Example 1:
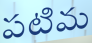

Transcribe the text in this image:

పటిమ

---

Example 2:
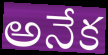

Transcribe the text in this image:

అనేక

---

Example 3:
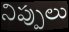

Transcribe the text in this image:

నిప్పులు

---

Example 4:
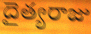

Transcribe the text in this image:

దైత్యరాజు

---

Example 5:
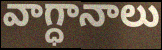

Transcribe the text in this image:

వాగ్ధానాలు